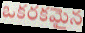
ఒకరకమైన